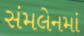
સંમલેનમાં